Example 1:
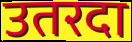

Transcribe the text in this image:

उतरदा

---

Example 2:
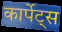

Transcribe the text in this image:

कार्पेट्स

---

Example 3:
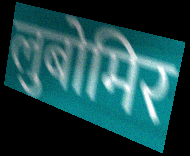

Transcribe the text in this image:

लुबोमिर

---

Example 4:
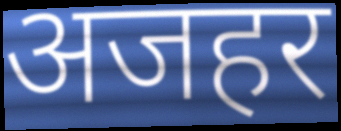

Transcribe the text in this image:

अजहर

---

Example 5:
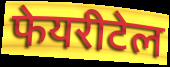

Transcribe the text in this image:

फेयरीटेल